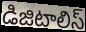
డిజిటాలిస్